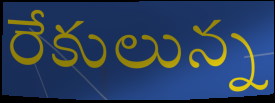
రేకులున్న